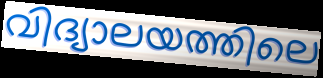
വിദ്യാലയത്തിലെ